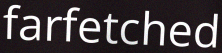
farfetched